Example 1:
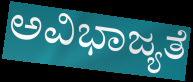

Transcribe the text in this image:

ಅವಿಭಾಜ್ಯತೆ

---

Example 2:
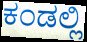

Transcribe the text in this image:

ಕಂಡಲ್ಲಿ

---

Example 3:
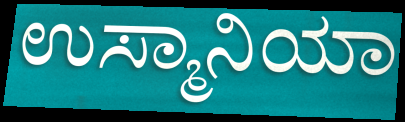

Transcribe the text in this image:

ಉಸ್ಮಾನಿಯಾ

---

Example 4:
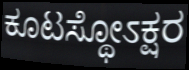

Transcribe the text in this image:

ಕೂಟಸ್ಥೋಽಕ್ಷರ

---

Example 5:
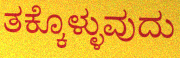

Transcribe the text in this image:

ತಕ್ಕೊಳ್ಳುವುದು